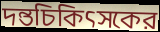
দন্তচিকিৎসকের